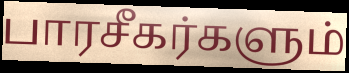
பாரசீகர்களும்